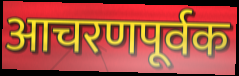
आचरणपूर्वक